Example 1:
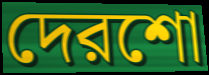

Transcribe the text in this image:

দেরশো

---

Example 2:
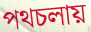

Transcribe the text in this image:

পথচলায়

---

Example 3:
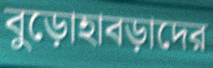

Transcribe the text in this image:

বুড়োহাবড়াদের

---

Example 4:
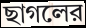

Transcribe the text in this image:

ছাগলের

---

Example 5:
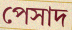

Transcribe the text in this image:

পেসাদ